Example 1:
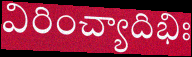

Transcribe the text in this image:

విరించ్యాదిభిః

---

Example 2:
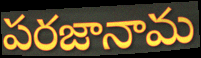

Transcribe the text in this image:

పరజానామ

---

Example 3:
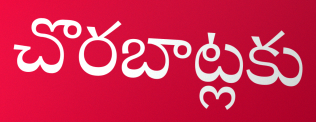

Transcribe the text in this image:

చొరబాట్లకు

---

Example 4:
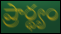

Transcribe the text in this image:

ప్రార్థ్యం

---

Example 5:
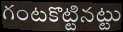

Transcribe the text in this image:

గంటకొట్టినట్టు